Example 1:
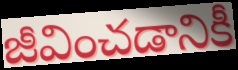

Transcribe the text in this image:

జీవించడానికీ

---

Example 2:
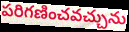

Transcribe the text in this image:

పరిగణించవచ్చును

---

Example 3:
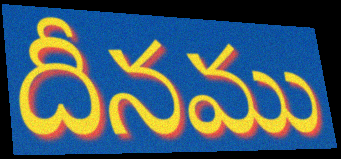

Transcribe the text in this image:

దీనము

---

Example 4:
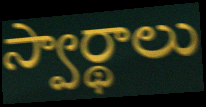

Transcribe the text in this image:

స్వార్థాలు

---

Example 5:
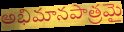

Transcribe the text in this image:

అభిమానపాత్రమై